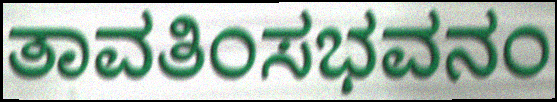
ತಾವತಿಂಸಭವನಂ